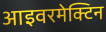
आइवरमेक्टिन